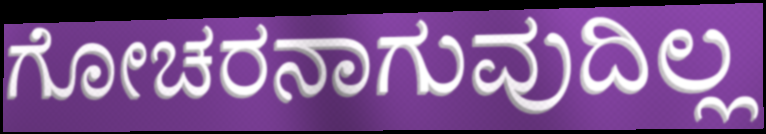
ಗೋಚರನಾಗುವುದಿಲ್ಲ